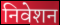
निवेशन